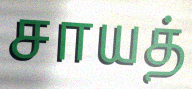
சாயத்